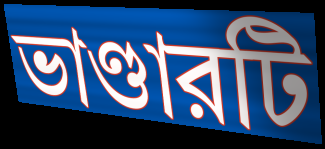
ভাণ্ডারটি